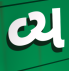
વ્ય